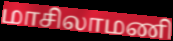
மாசிலாமணி